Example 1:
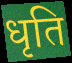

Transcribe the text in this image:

धृति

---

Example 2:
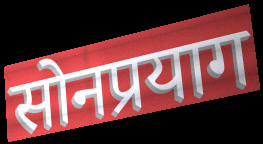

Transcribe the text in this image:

सोनप्रयाग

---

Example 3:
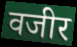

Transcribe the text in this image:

वजीर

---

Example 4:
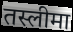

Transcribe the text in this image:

तस्लीमा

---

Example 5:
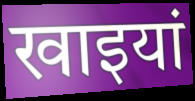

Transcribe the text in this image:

खाइयां